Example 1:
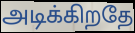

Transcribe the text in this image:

அடிக்கிறதே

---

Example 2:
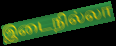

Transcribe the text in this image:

இடைநில்லா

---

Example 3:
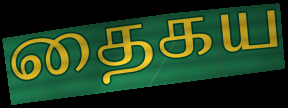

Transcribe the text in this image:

தைகய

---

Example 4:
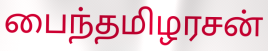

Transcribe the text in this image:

பைந்தமிழரசன்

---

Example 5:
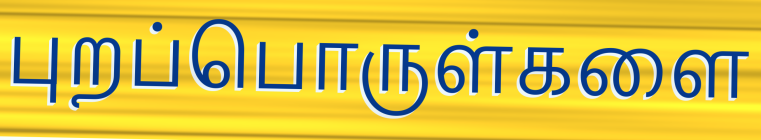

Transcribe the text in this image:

புறப்பொருள்களை